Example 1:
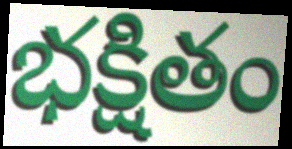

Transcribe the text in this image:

భక్షితం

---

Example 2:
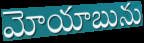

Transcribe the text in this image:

మోయాబును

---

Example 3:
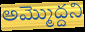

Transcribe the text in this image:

అమ్మొద్దని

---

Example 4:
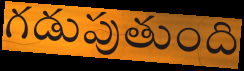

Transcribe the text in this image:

గడుపుతుంది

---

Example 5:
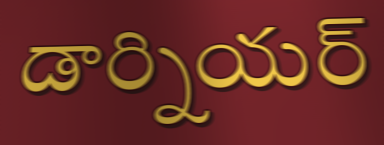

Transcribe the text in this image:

డార్నియర్